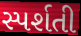
સ્પર્શતી